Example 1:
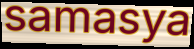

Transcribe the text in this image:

samasya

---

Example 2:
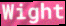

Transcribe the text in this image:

Wight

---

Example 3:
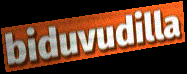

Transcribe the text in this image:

biduvudilla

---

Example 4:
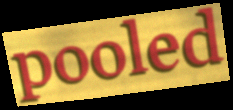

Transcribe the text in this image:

pooled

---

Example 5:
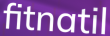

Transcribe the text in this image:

fitnatil